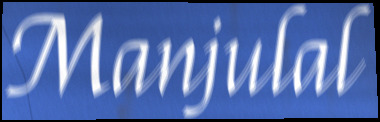
Manjulal